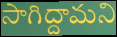
సాగిద్దామని